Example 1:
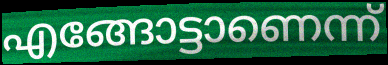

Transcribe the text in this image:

എങ്ങോട്ടാണെന്ന്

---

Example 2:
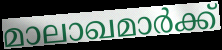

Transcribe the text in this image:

മാലാഖമാർക്ക്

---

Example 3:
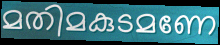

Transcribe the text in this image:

മതിമകുടമണേ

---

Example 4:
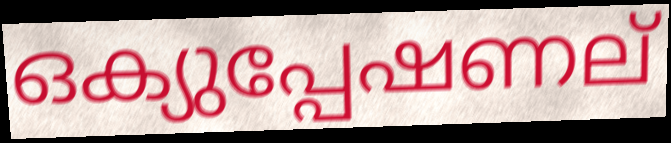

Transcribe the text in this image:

ഒക്യുപ്പേഷണല്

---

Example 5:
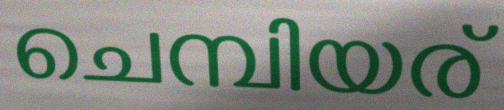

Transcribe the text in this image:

ചെമ്പിയര്